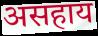
असहाय